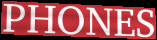
PHONES